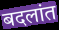
बदलांत